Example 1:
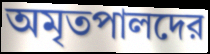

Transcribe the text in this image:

অমৃতপালদের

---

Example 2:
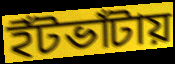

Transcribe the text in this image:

ইঁটভাঁটায়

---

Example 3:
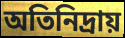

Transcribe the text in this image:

অতিনিদ্রায়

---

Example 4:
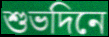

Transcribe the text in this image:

শুভদিনে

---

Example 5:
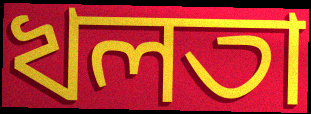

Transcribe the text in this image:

খলতা